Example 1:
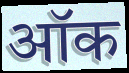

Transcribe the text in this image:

ऑक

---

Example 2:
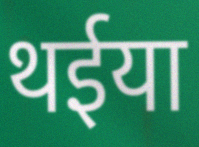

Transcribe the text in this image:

थईया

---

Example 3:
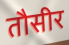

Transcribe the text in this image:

तौसीर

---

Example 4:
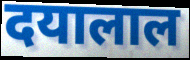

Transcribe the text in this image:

दयालाल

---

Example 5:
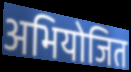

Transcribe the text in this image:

अभियोजित